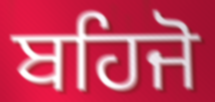
ਬਹਿਜੋ